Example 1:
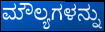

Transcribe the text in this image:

ಮೌಲ್ಯಗಳನ್ನು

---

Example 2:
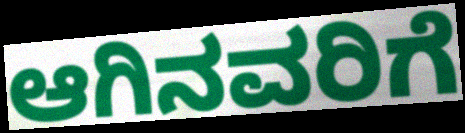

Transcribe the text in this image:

ಆಗಿನವರಿಗೆ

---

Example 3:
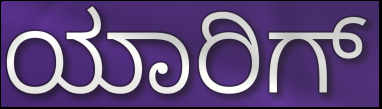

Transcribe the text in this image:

ಯಾರಿಗ್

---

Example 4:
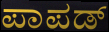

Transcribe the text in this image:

ಪಾಪಡ್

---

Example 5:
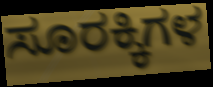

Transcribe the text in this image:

ಸೂರಕ್ಕಿಗಳ